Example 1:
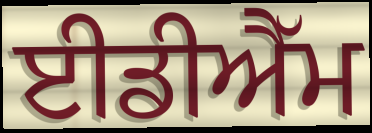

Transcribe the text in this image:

ਈਡੀਐੱਮ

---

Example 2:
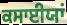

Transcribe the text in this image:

ਕਸਾਈਯਾਂ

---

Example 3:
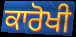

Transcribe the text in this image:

ਕਾਰੋਖੀ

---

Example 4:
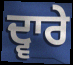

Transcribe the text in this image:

ਦ੍ਵਾਰੇ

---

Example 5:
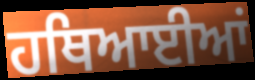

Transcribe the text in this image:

ਹਥਿਆਈਆਂ